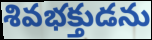
శివభక్తుడను